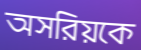
অসরিয়কে